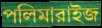
পলিমারাইজ